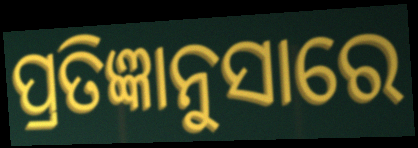
ପ୍ରତିଜ୍ଞାନୁସାରେ